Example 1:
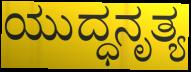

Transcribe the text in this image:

ಯುದ್ಧನೃತ್ಯ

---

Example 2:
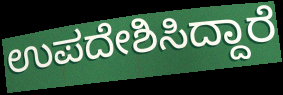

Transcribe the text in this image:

ಉಪದೇಶಿಸಿದ್ದಾರೆ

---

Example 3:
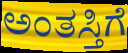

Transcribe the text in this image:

ಅಂತಸ್ತಿಗೆ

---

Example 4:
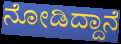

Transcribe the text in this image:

ನೋಡಿದ್ದಾನೆ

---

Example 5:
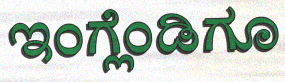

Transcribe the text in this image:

ಇಂಗ್ಲೆಂಡಿಗೂ